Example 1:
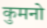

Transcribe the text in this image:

कुमनो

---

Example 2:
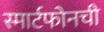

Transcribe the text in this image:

स्मार्टफोनची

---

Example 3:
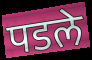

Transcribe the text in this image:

पडले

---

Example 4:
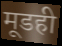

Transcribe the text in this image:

मूडही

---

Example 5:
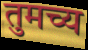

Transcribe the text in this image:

तुमच्य